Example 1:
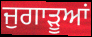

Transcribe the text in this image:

ਜੁਗਾੜੂਆਂ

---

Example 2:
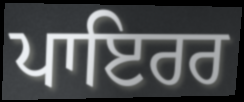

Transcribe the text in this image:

ਪਾਇਰਰ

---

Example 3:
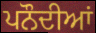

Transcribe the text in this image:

ਪਨੌਦੀਆਂ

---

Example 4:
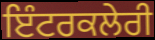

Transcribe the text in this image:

ਇੰਟਰਕਲੇਰੀ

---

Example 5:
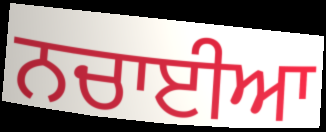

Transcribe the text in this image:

ਨਚਾਈਆ